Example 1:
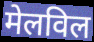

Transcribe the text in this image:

मेलविल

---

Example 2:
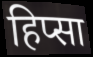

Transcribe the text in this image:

हिप्सा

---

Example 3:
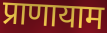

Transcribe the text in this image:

प्राणायाम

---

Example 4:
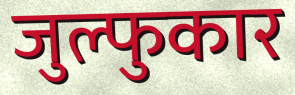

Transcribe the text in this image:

जुल्फुकार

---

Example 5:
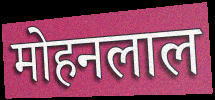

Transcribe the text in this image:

मोहनलाल